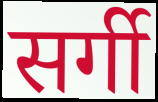
सर्गी